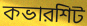
কভারশিট